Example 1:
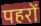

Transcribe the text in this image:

पहरों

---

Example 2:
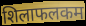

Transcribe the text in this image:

शिलाफलकम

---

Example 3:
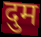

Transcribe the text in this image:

दुम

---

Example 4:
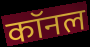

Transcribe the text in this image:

कॉनल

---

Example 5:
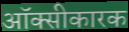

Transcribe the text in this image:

ऑक्सीकारक